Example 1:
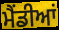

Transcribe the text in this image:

ਮੈਂਡੀਆਂ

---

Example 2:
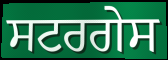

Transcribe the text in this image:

ਸਟਰਗੇਸ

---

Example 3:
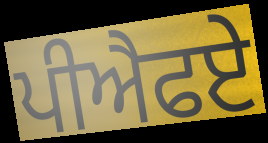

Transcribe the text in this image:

ਪੀਐਫਏ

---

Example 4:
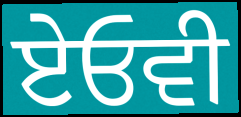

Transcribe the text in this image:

ਏਓਵੀ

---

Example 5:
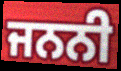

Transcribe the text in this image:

ਜਨਨੀ